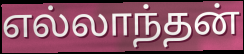
எல்லாந்தன்